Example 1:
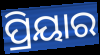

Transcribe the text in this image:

ପ୍ରିୟାର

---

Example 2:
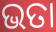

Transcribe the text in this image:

ଭତା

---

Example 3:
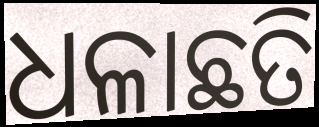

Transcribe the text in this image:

ଧଳାଛତି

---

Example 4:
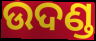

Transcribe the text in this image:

ଉଦଣ୍ଡ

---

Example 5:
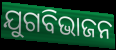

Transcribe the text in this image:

ଯୁଗବିଭାଜନ